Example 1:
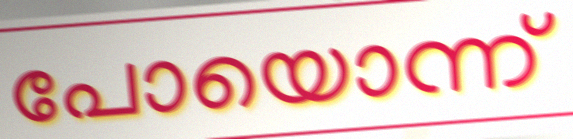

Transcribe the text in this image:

പോയൊന്ന്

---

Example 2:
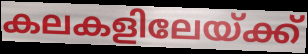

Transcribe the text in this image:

കലകളിലേയ്ക്ക്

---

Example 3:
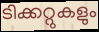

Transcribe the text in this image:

ടിക്കറ്റുകളും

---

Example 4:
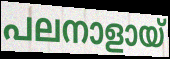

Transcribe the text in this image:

പലനാളായ്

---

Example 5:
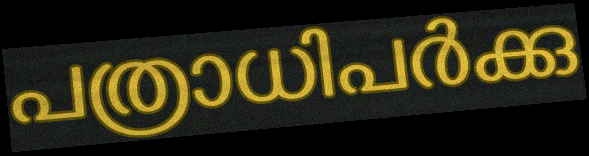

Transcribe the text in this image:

പത്രാധിപർക്കു